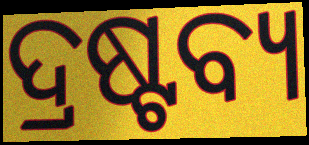
ଦ୍ରଷ୍ଟବ୍ୟ